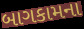
બાગકામના